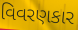
વિવરણકાર